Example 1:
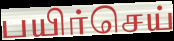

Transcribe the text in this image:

பயிர்செய்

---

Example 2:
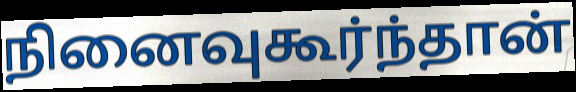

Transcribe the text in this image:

நினைவுகூர்ந்தான்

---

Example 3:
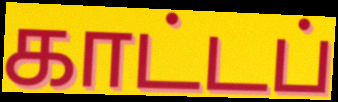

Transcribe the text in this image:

காட்டப்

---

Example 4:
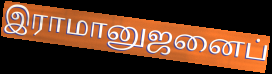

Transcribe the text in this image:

இராமானுஜனைப்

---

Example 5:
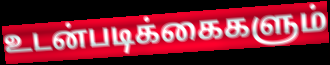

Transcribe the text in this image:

உடன்படிக்கைகளும்